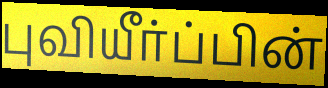
புவியீர்ப்பின்